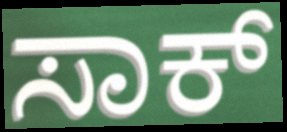
ಸಾಕ್